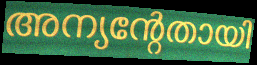
അന്യന്റേതായി